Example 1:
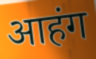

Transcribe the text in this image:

आहंग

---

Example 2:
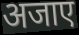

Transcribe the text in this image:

अजाए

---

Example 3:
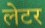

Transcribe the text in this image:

लेटर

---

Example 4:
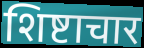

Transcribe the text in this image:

शिष्टाचार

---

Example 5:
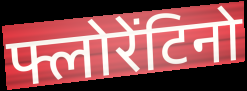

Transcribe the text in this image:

फ्लोरेंटिनो